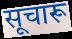
सूचारू